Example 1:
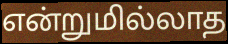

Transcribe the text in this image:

என்றுமில்லாத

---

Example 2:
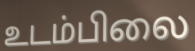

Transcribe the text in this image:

உடம்பிலை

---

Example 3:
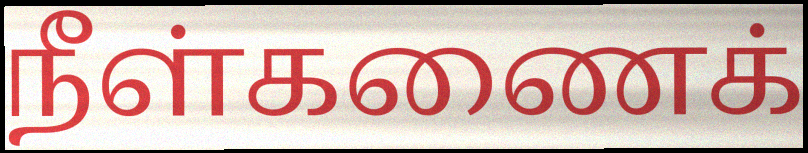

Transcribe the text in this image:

நீள்கணைக்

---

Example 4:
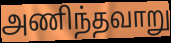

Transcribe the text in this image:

அணிந்தவாறு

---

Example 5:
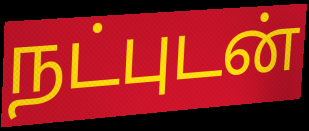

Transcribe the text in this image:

நட்புடன்